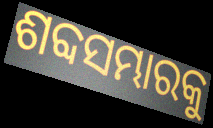
ଶବ୍ଦସମ୍ଭାରକୁ